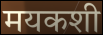
मयकशी